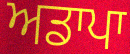
ਅਡਾਪਾ